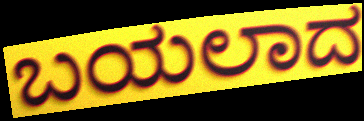
ಬಯಲಾದ